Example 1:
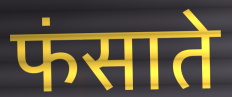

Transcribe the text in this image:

फंसाते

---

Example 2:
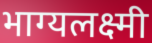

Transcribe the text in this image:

भाग्यलक्ष्मी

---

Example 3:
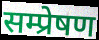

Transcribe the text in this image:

सम्प्रेषण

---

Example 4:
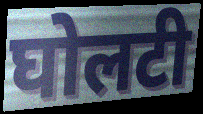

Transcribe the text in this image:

घोलटी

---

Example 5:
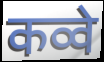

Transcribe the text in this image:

कव्वे